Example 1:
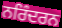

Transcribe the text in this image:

ਨਰਿੰਦਰਨ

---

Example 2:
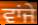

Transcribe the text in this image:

ਵਾਂਜੇ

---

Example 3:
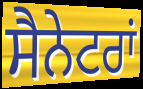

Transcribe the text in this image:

ਸੈਨੇਟਰਾਂ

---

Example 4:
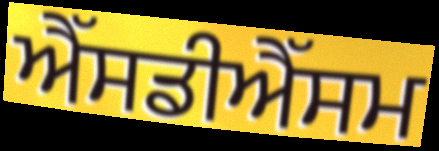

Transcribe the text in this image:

ਐੱਸਡੀਐੱਸਮ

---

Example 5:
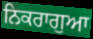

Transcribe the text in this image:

ਨਿਕਰਾਗੁਆ